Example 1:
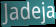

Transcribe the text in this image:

Jadeja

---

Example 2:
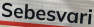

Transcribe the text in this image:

Sebesvari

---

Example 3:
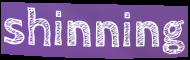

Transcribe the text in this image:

shinning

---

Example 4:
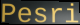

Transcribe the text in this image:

Pesri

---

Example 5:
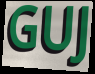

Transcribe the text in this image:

GUJ